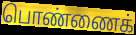
பொண்ணைக்